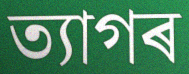
ত্যাগৰ